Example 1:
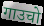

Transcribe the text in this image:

गाउचो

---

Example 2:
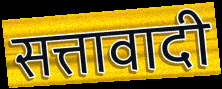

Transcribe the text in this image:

सत्तावादी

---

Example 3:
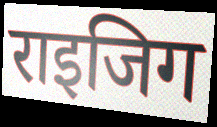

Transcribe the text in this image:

राइजिग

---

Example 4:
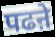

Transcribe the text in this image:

पढऩे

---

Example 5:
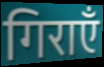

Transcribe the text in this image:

गिराएँ